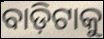
ବାଡ଼ିଟାକୁ